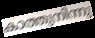
കാത്തുനിന്നു